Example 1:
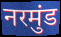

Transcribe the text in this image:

नरमुंड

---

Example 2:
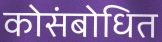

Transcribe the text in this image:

कोसंबोधित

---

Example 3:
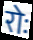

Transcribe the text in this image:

रोः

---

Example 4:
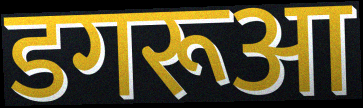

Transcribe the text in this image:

डगरूआ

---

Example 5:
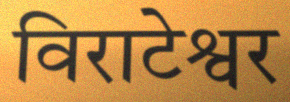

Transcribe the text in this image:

विराटेश्वर